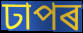
ঢাপৰ